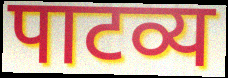
पाटव्य